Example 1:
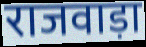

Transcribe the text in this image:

राजवाड़ा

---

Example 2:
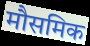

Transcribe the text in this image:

मौसमिक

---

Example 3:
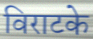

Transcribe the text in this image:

विराटके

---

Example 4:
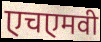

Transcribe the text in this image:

एचएमवी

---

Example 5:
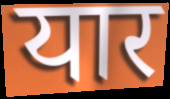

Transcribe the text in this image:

यार